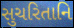
સુચરિતાનિ